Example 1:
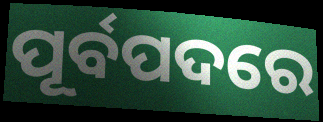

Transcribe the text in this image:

ପୂର୍ବପଦରେ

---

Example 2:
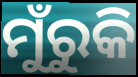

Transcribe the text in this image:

ମୁଁରୁକି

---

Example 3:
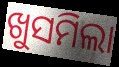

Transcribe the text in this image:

ଖୁସମିଲା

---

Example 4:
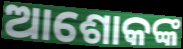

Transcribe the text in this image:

ଆଶୋକଙ୍କ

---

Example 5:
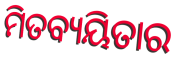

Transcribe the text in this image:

ମିତବ୍ୟୟିତାର